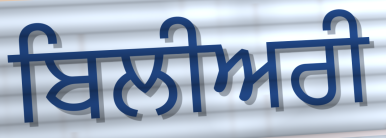
ਬਿਲੀਅਰੀ